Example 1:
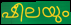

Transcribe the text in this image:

ഷീലയും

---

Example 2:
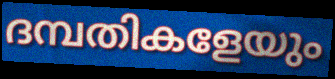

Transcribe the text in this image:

ദമ്പതികളേയും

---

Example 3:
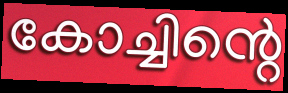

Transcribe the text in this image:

കോച്ചിന്റെ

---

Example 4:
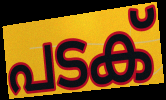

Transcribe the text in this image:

പടക്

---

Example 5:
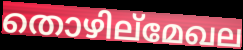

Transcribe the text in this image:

തൊഴില്മേഖല